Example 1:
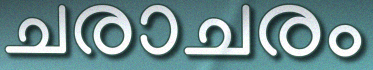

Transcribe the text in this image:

ചരാചരം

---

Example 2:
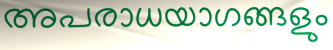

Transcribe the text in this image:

അപരാധയാഗങ്ങളും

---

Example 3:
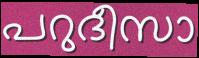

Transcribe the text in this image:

പറുദീസാ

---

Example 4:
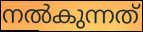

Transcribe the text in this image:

നൽകുന്നത്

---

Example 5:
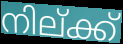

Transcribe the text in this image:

നില്ക്ക്